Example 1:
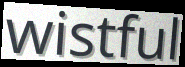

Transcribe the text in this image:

wistful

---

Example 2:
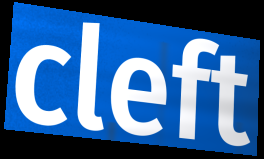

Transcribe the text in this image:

cleft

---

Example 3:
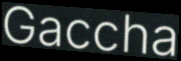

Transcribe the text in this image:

Gaccha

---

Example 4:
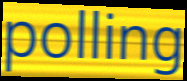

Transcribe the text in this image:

polling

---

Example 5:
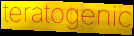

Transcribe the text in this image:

teratogenic